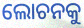
ଲୋଚନକୁ